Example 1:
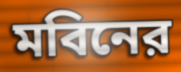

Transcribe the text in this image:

মবিনের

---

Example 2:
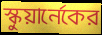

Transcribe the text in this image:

স্কুয়ার্নেকের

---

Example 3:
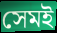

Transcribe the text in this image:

সেমই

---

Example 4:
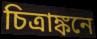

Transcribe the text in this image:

চিত্রাঙ্কনে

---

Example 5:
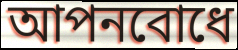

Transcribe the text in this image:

আপনবোধে